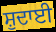
ਸ਼ੁਦਾਈ